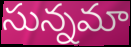
సున్నమా